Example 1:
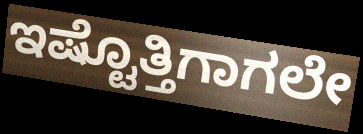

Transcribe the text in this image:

ಇಷ್ಟೊತ್ತಿಗಾಗಲೇ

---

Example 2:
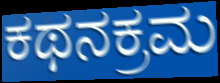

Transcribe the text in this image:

ಕಥನಕ್ರಮ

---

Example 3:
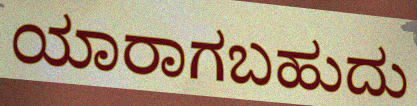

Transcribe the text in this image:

ಯಾರಾಗಬಹುದು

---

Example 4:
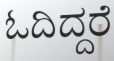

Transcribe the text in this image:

ಓದಿದ್ದರೆ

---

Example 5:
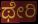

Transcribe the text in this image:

ಥೇರಿ